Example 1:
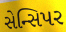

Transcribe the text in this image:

સેન્સિપર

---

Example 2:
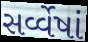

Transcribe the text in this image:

સર્વ્વેષાં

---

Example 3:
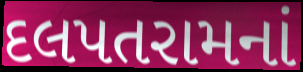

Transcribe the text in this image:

દલપતરામનાં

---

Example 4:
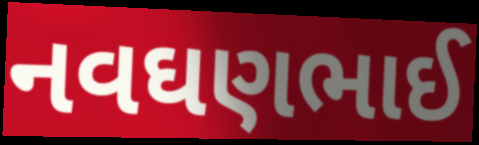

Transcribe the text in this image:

નવઘણભાઈ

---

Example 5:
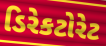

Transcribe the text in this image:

ડિરેકટોરેટ